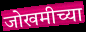
जोखमीच्या